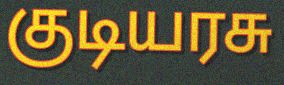
குடியரசு